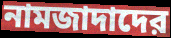
নামজাদাদের